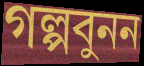
গল্পবুনন